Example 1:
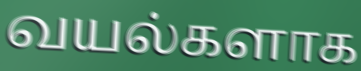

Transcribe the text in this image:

வயல்களாக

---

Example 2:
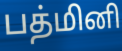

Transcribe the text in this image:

பத்மினி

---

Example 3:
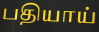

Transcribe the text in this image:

பதியாய்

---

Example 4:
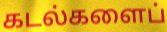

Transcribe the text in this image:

கடல்களைப்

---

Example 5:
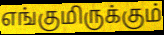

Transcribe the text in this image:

எங்குமிருக்கும்